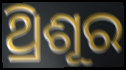
ଥ୍ରିଶୂର